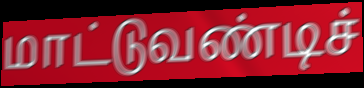
மாட்டுவண்டிச்